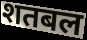
शतबल